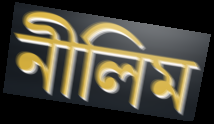
নীলিম